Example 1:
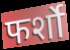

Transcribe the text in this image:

फर्शो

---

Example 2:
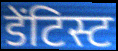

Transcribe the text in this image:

डेंटिस्ट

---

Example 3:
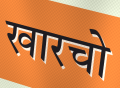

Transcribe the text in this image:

खारचो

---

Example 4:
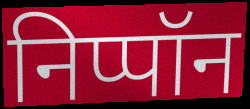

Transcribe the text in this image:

निप्पॉन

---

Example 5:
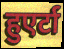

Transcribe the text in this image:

हुएर्टा